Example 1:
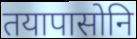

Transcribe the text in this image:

तयापासोनि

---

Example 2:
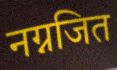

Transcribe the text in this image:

नग्नजित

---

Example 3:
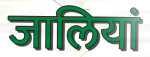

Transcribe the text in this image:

जालियां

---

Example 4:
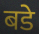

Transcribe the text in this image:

बडे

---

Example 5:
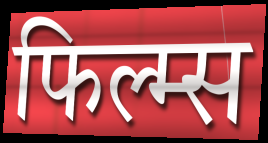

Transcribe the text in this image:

फिल्म्स